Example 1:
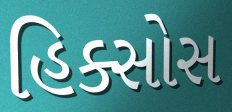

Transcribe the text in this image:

હિક્સોસ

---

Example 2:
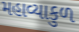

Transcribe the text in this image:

મહાવ્યાકુળ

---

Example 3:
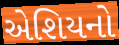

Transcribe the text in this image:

એશિયનો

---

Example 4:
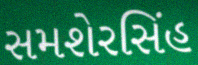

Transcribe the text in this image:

સમશેરસિંહ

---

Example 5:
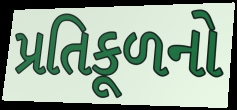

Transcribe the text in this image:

પ્રતિકૂળનો